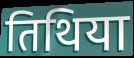
तिथिया